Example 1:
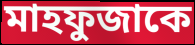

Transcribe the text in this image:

মাহফুজাকে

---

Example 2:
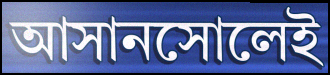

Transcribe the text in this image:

আসানসোলেই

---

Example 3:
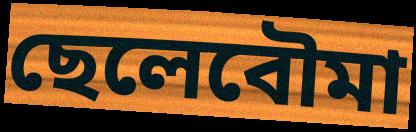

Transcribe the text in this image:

ছেলেবৌমা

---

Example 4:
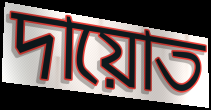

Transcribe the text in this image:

দায়োত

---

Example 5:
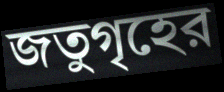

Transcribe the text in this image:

জতুগৃহের